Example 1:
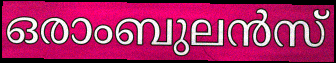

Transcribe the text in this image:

ഒരാംബുലൻസ്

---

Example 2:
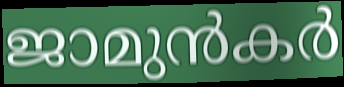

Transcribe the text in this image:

ജാമുൻകർ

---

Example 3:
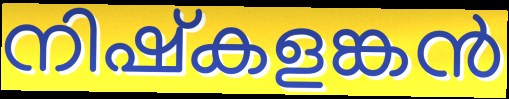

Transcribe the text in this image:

നിഷ്കളങ്കൻ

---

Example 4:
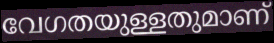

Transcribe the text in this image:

വേഗതയുള്ളതുമാണ്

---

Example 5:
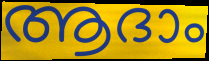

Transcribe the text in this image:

ആദാം